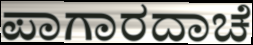
ಪಾಗಾರದಾಚೆ